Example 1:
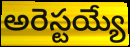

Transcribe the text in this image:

అరెస్టయ్యే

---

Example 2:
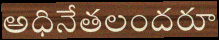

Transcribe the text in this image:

అధినేతలందరూ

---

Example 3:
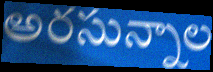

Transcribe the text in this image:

అరసున్నాల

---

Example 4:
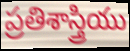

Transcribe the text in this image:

ప్రతిశాస్త్రియు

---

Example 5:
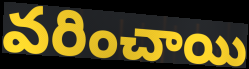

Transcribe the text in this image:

వరించాయి